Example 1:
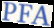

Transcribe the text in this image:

PFA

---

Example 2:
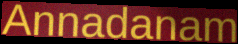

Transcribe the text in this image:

Annadanam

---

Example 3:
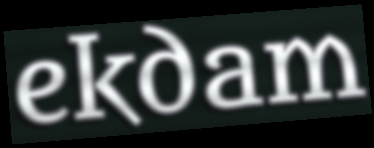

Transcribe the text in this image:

ekdam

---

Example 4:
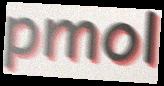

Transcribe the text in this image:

pmol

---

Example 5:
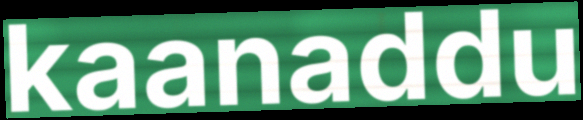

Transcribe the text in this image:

kaanaddu